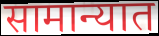
सामान्यात